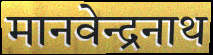
मानवेन्द्रनाथ